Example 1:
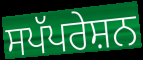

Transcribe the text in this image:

ਸਪੱਪਰੇਸ਼ਨ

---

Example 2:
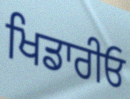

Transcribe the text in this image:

ਖਿਡਾਰੀਓ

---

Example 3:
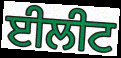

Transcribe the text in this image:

ਈਲੀਟ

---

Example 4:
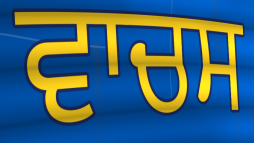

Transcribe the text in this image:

ਵਾਚਸ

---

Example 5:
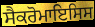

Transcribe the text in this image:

ਸੈਕਰੋਮਾਇਸਿਸ